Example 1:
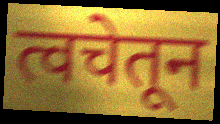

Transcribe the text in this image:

त्वचेतून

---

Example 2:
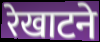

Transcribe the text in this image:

रेखाटने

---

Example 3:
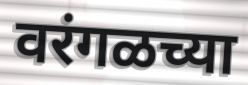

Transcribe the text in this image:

वरंगळच्या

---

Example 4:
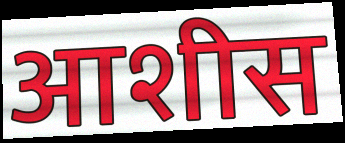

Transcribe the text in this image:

आशीस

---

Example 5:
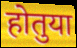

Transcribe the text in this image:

होतुया